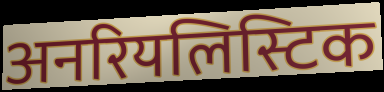
अनरियलिस्टिक